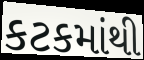
કટકમાંથી